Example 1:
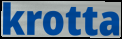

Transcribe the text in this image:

krotta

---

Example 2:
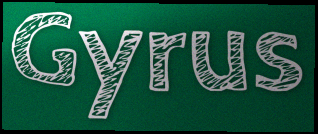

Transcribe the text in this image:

Gyrus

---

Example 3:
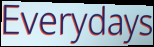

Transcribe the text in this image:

Everydays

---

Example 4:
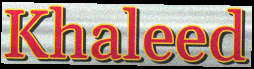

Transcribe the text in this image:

Khaleed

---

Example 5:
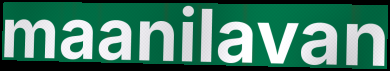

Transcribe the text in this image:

maanilavan